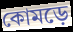
কোমড়ে